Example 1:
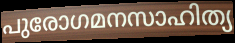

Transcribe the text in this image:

പുരോഗമനസാഹിത്യ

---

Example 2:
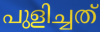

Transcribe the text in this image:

പുളിച്ചത്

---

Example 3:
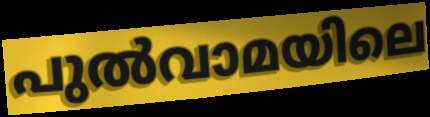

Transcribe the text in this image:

പുൽവാമയിലെ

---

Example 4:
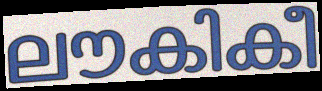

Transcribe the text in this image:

ലൗകികീ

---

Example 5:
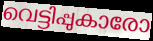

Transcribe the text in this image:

വെട്ടിപ്പുകാരോ